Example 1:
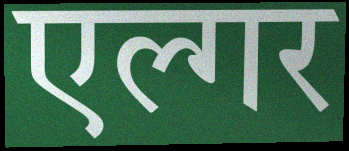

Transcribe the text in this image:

एल्गर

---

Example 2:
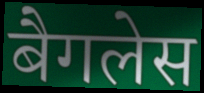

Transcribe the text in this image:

बैगलेस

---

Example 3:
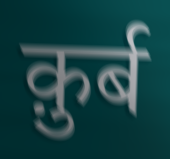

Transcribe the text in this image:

क़ुर्ब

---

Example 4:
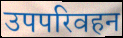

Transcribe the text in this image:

उपपरिवहन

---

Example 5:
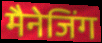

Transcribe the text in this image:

मैनेजिंग